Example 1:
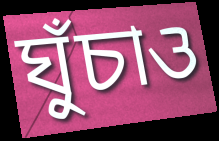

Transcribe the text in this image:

ঘুঁচাও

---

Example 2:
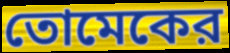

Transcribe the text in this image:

তোমেকের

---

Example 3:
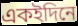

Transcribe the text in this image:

একইদিনে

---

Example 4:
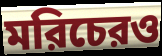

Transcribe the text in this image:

মরিচেরও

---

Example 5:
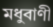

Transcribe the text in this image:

মধুবাণী